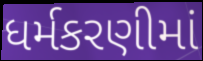
ધર્મકરણીમાં